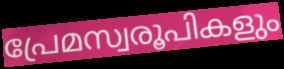
പ്രേമസ്വരൂപികളും